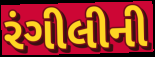
રંગીલીની